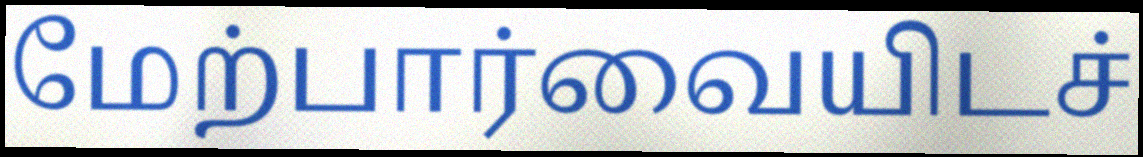
மேற்பார்வையிடச்